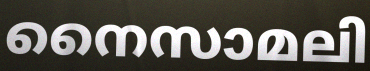
നൈസാമലി